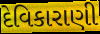
દેવિકારાણી